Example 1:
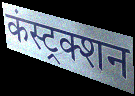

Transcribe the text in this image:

कंस्ट्रक्शन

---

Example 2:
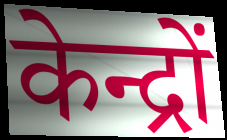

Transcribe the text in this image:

केन्द्रों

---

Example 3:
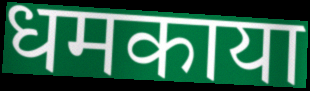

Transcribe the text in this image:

धमकाया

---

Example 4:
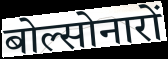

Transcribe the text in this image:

बोल्सोनारों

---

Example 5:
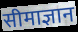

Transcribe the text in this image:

सीमाज्ञान